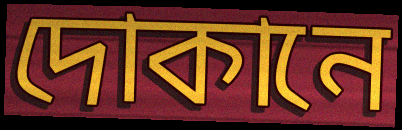
দোকানে